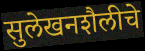
सुलेखनशैलीचे